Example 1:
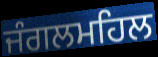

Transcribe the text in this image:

ਜੰਗਲਮਹਿਲ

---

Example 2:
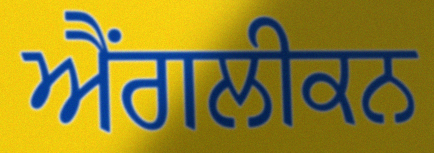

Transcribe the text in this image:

ਐਂਗਲੀਕਨ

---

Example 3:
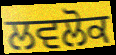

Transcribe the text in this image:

ਲਵਲੋਕ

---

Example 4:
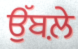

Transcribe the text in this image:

ਉੱਬਲ਼ੇ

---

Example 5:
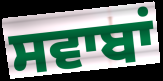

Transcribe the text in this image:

ਸਵਾਬਾਂ